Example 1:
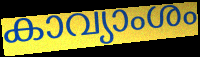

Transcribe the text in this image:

കാവ്യാംശം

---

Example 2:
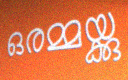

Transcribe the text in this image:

ഒരമ്മയ്ക്കു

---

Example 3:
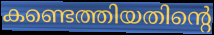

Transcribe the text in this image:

കണ്ടെത്തിയതിന്റെ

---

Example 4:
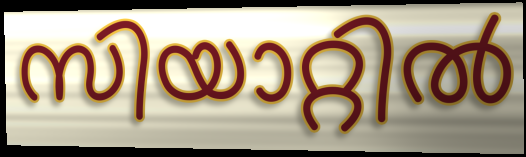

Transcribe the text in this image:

സിയാറ്റിൽ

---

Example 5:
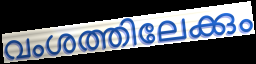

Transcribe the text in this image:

വംശത്തിലേക്കും